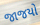
જાજયો